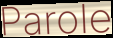
Parole